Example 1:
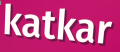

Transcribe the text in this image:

katkar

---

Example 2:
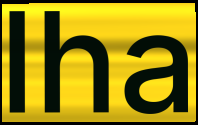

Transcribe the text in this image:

lha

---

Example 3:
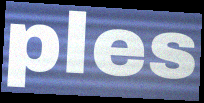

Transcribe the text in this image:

ples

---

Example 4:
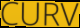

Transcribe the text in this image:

CURV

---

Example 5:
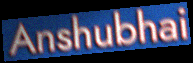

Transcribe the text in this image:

Anshubhai